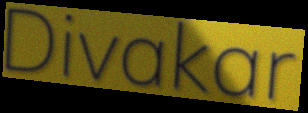
Divakar